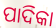
ପାଦିକା